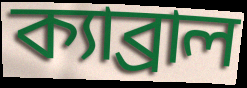
ক্যাব্রাল